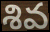
శివ